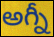
అగ్నీ